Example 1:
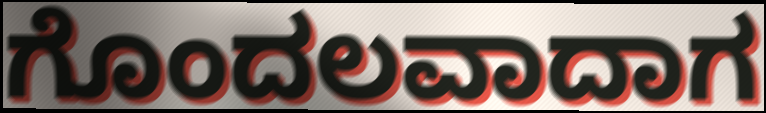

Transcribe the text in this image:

ಗೊಂದಲವಾದಾಗ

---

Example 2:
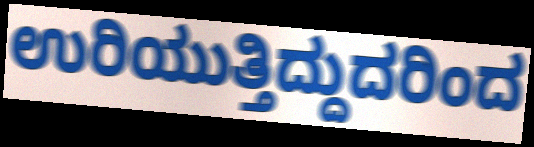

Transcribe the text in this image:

ಉರಿಯುತ್ತಿದ್ದುದರಿಂದ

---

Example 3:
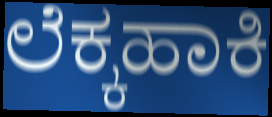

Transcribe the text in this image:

ಲೆಕ್ಕಹಾಕಿ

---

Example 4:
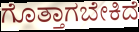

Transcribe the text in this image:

ಗೊತ್ತಾಗಬೇಕಿದೆ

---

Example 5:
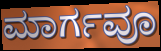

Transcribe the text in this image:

ಮಾರ್ಗವೂ